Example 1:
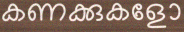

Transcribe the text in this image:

കണക്കുകളോ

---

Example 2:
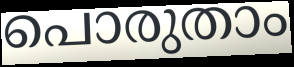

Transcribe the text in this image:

പൊരുതാം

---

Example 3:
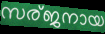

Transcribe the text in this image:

സര്ജനായ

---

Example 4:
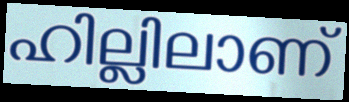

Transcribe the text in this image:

ഹില്ലിലാണ്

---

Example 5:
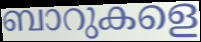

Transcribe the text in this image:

ബാറുകളെ